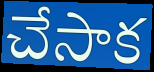
చేసాక